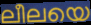
ലീലയെ